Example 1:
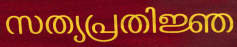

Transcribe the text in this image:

സത്യപ്രതിജ്ഞ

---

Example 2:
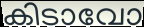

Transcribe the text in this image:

കിടാവോ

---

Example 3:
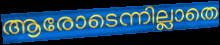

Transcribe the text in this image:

ആരോടെന്നില്ലാതെ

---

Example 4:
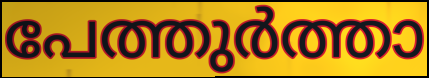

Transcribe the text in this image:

പേത്തുർത്താ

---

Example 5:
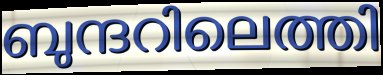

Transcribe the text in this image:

ബുന്ദറിലെത്തി